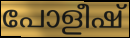
പോളീഷ്